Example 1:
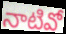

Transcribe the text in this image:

నాటివో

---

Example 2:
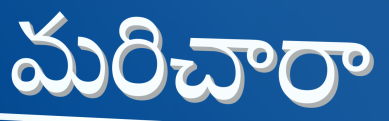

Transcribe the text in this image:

మరిచారా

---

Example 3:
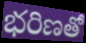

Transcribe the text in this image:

భరిణతో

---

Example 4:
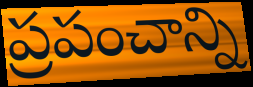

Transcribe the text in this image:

ప్రపంచాన్ని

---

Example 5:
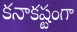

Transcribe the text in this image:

కనాకష్టంగా